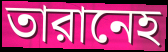
তারানেহ